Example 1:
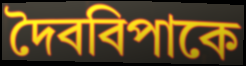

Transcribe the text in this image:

দৈববিপাকে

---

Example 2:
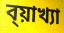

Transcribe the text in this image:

ব্য়াখ্যা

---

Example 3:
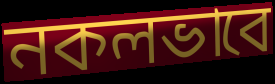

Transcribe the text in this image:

নকলভাবে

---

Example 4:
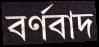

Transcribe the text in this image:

বর্ণবাদ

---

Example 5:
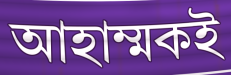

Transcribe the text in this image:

আহাম্মকই